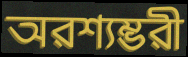
অৱশ্যম্ভৱী